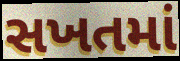
સખતમાં